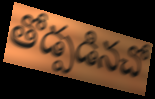
తోడ్పడినచో